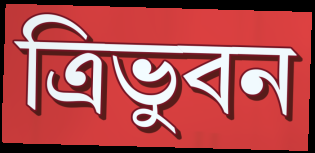
ত্রিভুবন